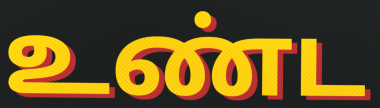
உண்ட